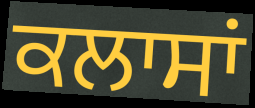
ਕਲਾਸਾਂ